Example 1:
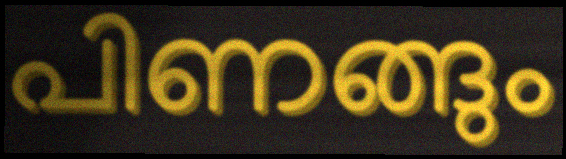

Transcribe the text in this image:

പിണങ്ങും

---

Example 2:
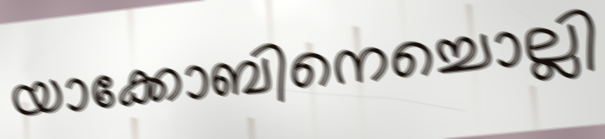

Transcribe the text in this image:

യാക്കോബിനെച്ചൊല്ലി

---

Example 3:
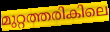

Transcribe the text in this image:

മുറ്റത്തരികിലെ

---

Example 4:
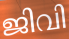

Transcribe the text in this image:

ജിവി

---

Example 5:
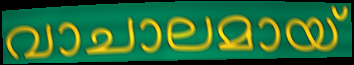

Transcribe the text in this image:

വാചാലമായ്